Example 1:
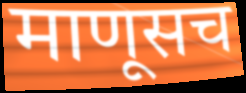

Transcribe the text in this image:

माणूसच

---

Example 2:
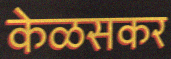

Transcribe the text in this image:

केळसकर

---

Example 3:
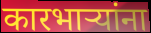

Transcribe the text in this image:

कारभाऱ्यांना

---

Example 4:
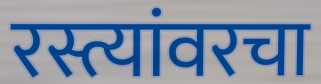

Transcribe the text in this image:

रस्त्यांवरचा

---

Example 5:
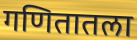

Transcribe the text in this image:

गणितातला